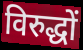
विरुद्धों